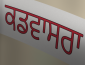
ਕਡਵਾਸਰਾ